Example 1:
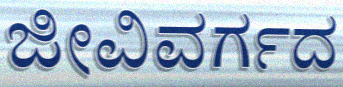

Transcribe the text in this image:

ಜೀವಿವರ್ಗದ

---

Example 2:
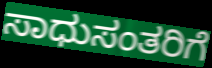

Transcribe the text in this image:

ಸಾಧುಸಂತರಿಗೆ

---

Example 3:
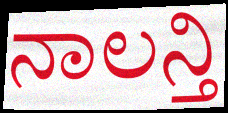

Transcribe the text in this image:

ನಾಲನ್ತಿ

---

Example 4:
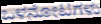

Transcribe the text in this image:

ಒಳನೋಟಗಳು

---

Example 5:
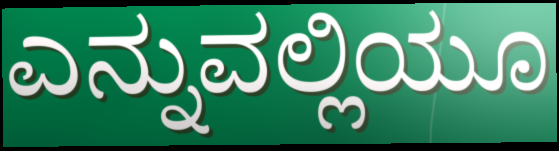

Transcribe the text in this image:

ಎನ್ನುವಲ್ಲಿಯೂ